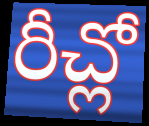
రీచ్లో